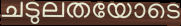
ചടുലതയോടെ